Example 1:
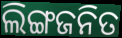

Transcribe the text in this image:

ଲିଙ୍ଗଜନିତ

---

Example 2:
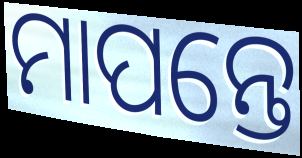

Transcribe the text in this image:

ମାପନ୍ତେ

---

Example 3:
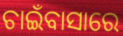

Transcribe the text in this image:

ଚାଇଁବାସାରେ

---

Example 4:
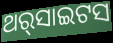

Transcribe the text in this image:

ଥର୍‌ସାଇଟସ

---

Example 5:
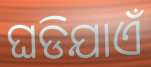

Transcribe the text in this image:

ଘଡିଯାଏଁ